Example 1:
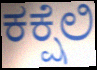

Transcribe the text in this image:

ಕಕ್ಷೆಲಿ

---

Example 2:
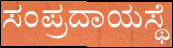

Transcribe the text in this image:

ಸಂಪ್ರದಾಯಸ್ಥೆ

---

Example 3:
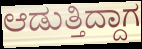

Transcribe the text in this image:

ಆಡುತ್ತಿದ್ದಾಗ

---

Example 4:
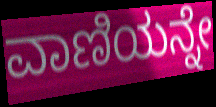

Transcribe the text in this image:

ವಾಣಿಯನ್ನೇ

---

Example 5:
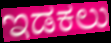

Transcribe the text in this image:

ಇಡಕಲು